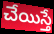
చేయిస్తే